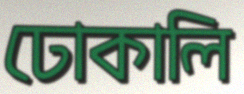
ঢোকালি